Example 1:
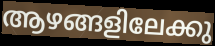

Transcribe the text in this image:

ആഴങ്ങളിലേക്കു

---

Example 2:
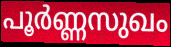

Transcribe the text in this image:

പൂർണ്ണസുഖം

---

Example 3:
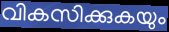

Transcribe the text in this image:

വികസിക്കുകയും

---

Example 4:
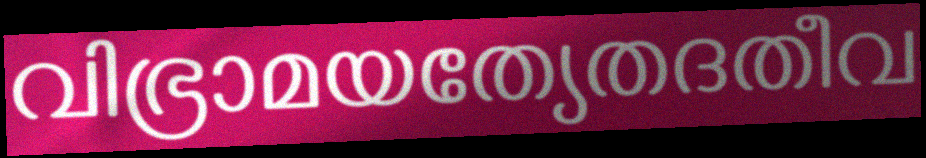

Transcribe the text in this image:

വിഭ്രാമയത്യേതദതീവ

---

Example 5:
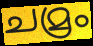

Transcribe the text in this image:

ചമ്രം